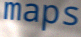
maps